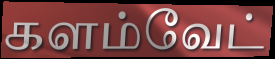
களம்வேட்